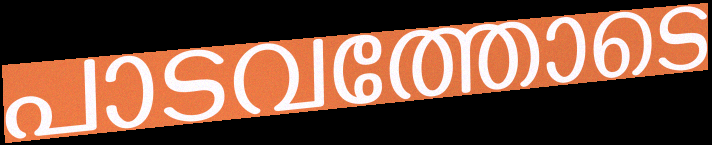
പാടവത്തോടെ